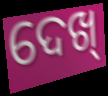
ଦେଖ୍